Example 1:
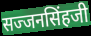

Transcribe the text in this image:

सज्जनसिंहजी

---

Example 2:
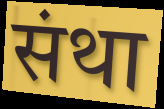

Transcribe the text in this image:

संथा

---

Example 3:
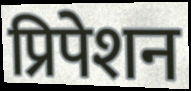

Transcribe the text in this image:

प्रिपेशन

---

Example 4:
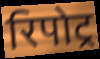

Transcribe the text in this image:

रिपोट्र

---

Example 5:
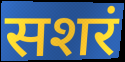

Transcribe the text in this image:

सशरं